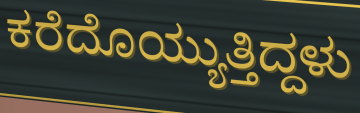
ಕರೆದೊಯ್ಯುತ್ತಿದ್ದಳು